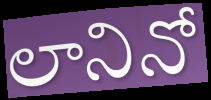
లానినో